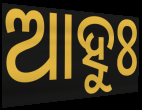
ଆହୁଃ